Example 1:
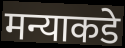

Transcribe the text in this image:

मन्याकडे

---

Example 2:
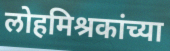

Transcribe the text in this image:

लोहमिश्रकांच्या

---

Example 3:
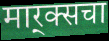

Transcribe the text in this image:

मार्क्सचा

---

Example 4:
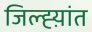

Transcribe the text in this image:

जिल्ह्य़ांत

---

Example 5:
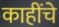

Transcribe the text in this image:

काहींचे